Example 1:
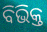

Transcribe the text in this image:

ବିଭିକ୍ତ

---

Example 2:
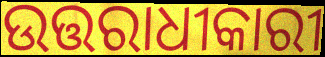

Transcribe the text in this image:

ଉତ୍ତରାଧୀକାରୀ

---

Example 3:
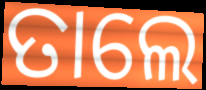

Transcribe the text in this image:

ତାଲେ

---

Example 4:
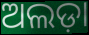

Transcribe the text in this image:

ଅଲଡ଼ା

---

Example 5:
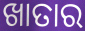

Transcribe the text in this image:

ଖାତାର